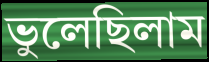
ভুলেছিলাম